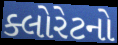
ક્લોરેટનો